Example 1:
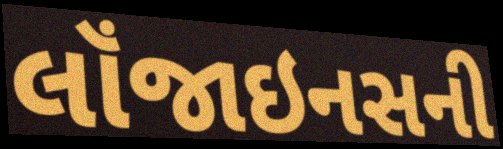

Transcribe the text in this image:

લૉંજાઇનસની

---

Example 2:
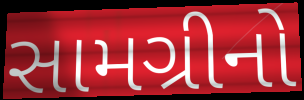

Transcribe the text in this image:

સામગ્રીનો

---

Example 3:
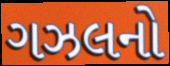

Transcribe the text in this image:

ગઝલનો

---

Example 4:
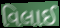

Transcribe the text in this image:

વિલાઈ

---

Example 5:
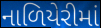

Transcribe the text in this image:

નાળિયેરીમાં